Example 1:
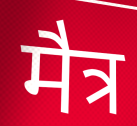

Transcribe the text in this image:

मैत्र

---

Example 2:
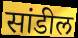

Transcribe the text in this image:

सांडील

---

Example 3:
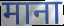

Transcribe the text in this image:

माना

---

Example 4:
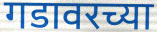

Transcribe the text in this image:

गडावरच्या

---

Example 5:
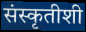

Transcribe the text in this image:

संस्कृतीशी